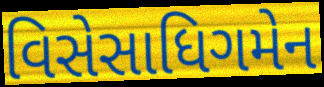
વિસેસાધિગમેન